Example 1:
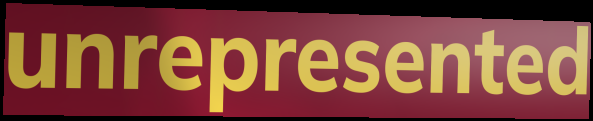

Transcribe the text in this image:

unrepresented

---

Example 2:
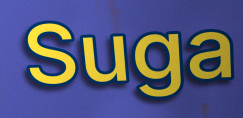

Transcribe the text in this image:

Suga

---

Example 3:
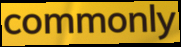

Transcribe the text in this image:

commonly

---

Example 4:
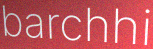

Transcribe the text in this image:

barchhi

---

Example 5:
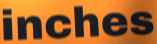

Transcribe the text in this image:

inches